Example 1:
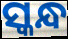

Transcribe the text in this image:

ସ୍କନ୍ଧ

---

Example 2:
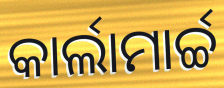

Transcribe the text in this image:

କାର୍ଲାମାର୍ଚ୍ଚ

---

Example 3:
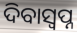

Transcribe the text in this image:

ଦିବାସ୍ଵପ୍ନ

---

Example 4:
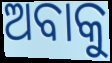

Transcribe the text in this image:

ଅବାକୁ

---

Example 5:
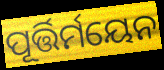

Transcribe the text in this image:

ପୂର୍ତ୍ତିର୍ମୟେନ